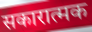
सकारात्‍मक